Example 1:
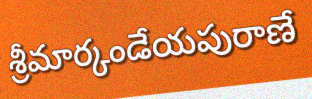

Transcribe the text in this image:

శ్రీమార్కండేయపురాణే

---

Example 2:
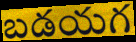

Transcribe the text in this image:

బడయగ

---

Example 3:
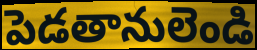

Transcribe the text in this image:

పెడతానులెండి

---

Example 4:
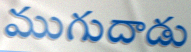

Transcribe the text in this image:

ముగుదాడు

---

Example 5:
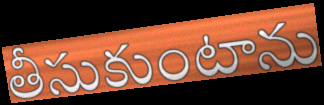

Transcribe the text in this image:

తీసుకుంటాను